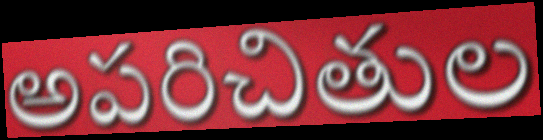
అపరిచితుల